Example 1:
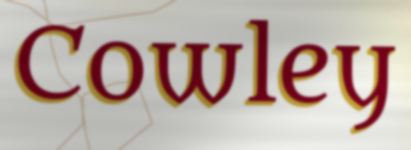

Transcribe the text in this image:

Cowley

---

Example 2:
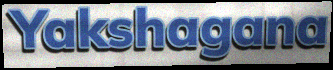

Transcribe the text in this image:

Yakshagana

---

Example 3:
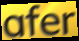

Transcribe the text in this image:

afer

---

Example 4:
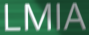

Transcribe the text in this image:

LMIA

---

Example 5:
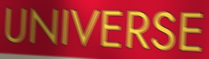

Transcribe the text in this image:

UNIVERSE